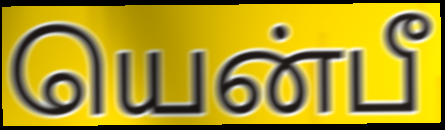
யென்பீ